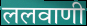
ललवाणी